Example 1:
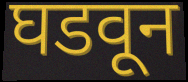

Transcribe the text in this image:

घडवून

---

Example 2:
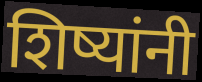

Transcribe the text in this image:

शिष्यांनी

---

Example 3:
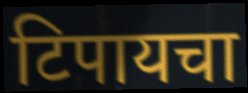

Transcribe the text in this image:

टिपायचा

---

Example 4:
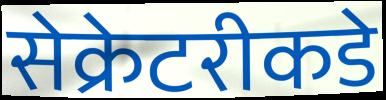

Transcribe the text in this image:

सेक्रेटरीकडे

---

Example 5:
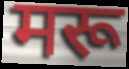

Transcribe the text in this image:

मरू